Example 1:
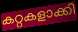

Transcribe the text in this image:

കറ്റകളാക്കി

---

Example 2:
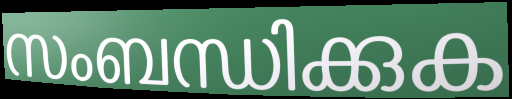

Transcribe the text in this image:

സംബന്ധിക്കുക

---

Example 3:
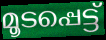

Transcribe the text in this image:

മൂടപ്പെട്ട്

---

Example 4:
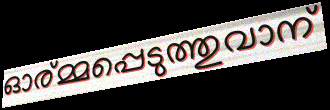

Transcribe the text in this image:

ഓര്മ്മപ്പെടുത്തുവാന്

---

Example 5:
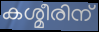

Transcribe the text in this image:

കശ്മീരിന്